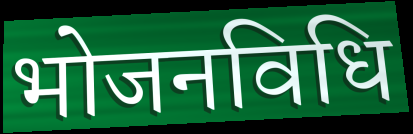
भोजनविधि